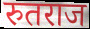
रुतराज